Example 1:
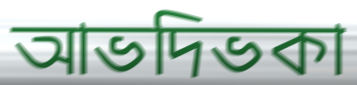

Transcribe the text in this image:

আভদিভকা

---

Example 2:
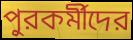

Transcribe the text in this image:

পুরকর্মীদের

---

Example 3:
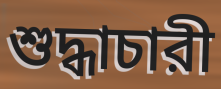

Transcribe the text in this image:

শুদ্ধাচারী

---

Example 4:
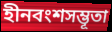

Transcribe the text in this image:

হীনবংশসম্ভূতা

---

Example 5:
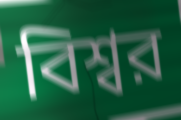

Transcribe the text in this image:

বিশ্বর